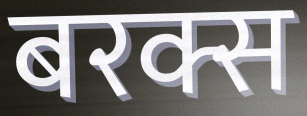
बरक्स